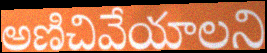
అణిచివేయాలని